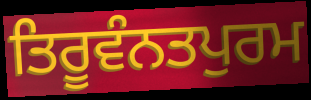
ਤਿਰੂਵੰਨਤਪੁਰਮ